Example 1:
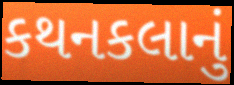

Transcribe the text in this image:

કથનકલાનું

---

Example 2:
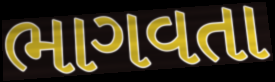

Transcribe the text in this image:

ભાગવતા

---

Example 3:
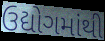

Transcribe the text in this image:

ઉદ્યોગમાંથી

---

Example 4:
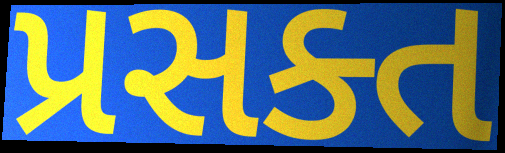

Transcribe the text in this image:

પ્રસક્ત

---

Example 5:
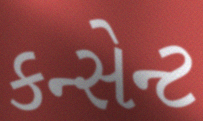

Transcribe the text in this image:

કન્સેન્ટ